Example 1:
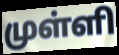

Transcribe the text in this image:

முள்ளி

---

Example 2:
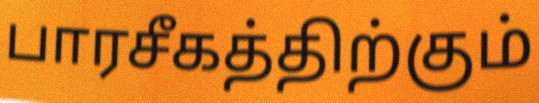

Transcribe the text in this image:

பாரசீகத்திற்கும்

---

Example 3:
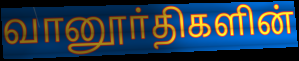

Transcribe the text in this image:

வானூர்திகளின்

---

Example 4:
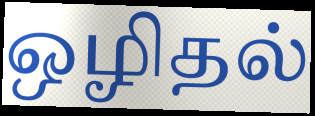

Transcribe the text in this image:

ஒழிதல்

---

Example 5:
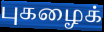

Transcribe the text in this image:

புகழைக்